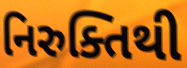
નિરુક્તિથી